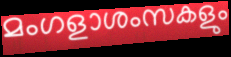
മംഗളാശംസകളും